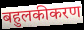
बहुलकीकरण